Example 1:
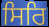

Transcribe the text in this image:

ਸਿਰਿ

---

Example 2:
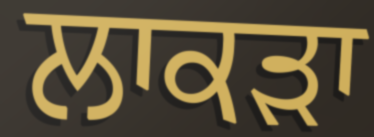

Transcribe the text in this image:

ਲਾਕੜਾ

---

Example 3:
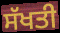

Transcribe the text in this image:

ਸੱਖਤੀ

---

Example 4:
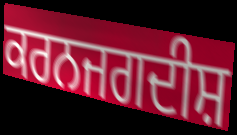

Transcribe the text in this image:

ਕਰਨਜਗਦੀਸ਼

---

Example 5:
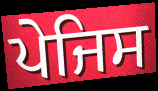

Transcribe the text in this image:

ਪੇਜਿਸ